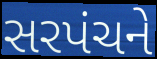
સરપંચને